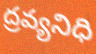
ద్రవ్యనిధి